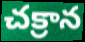
చక్రాన